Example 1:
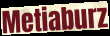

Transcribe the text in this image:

Metiaburz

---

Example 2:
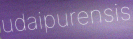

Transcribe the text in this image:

udaipurensis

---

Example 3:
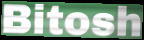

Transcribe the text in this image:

Bitosh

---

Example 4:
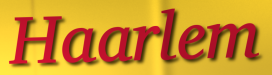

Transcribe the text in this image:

Haarlem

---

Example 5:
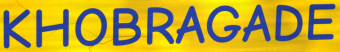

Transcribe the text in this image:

KHOBRAGADE